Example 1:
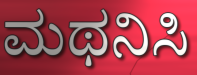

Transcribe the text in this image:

ಮಥನಿಸಿ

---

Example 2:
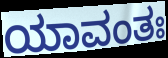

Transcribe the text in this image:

ಯಾವಂತಃ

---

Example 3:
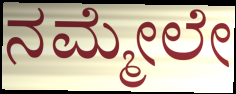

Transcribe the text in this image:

ನಮ್ಮೇಲೇ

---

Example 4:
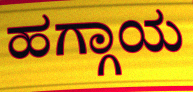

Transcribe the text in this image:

ಹಗ್ಗಾಯ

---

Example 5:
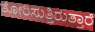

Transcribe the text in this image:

ತೋರಿಸುತ್ತಿರುತ್ತಾರೆ